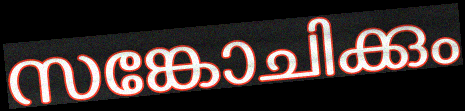
സങ്കോചിക്കും